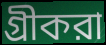
গ্রীকরা